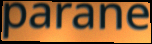
parane